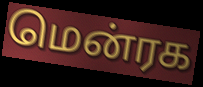
மென்ரக